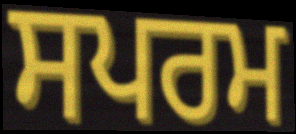
ਸਪਰਮ